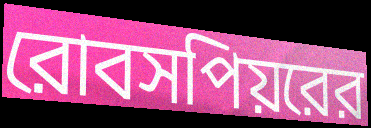
রোবসপিয়রের